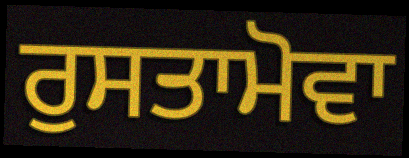
ਰੁਸਤਾਮੋਵਾ